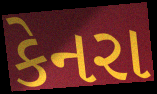
કેનરા